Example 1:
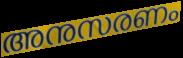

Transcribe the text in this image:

അനുസരണം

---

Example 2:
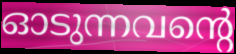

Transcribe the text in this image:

ഓടുന്നവന്റെ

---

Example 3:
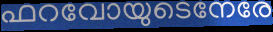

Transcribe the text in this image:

ഫറവോയുടെനേരേ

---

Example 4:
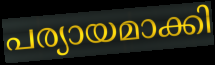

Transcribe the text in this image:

പര്യായമാക്കി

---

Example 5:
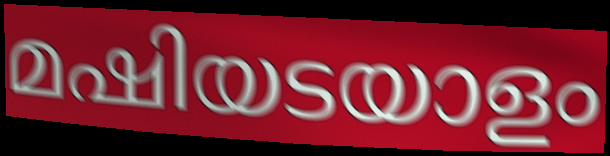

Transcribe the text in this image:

മഷിയടയാളം